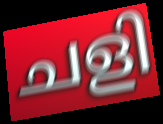
ചളി